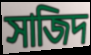
সাজিদ